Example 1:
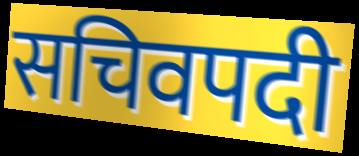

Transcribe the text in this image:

सचिवपदी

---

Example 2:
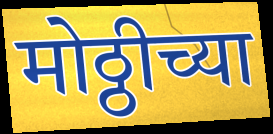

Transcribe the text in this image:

मोठ्ठीच्या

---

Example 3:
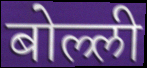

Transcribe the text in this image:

बोल्ली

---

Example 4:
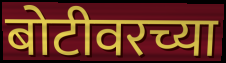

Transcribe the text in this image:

बोटीवरच्या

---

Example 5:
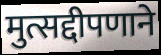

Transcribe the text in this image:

मुत्सद्दीपणाने